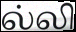
ல்லி